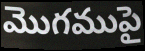
మొగముపై